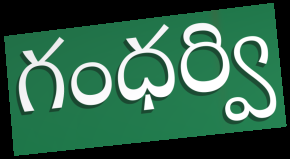
గంధర్వి